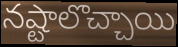
నష్టాలొచ్చాయి